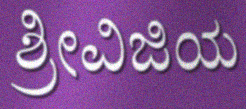
ಶ್ರೀವಿಜಿಯ